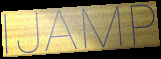
IJAMP